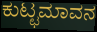
ಕುಟ್ಟಮಾವನ